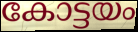
കോട്ടയം